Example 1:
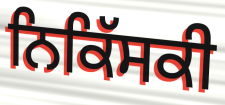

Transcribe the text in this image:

ਨਿਕਿੱਸਕੀ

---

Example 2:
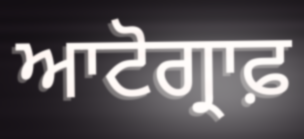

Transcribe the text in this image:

ਆਟੋਗ੍ਰਾਫ਼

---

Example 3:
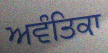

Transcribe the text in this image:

ਅਵੰਤਿਕਾ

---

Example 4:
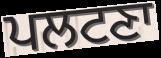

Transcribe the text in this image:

ਪਲਟਣਾ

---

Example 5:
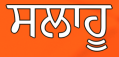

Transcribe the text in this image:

ਸਲਾਹੂ